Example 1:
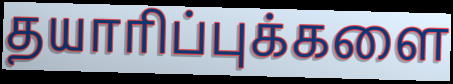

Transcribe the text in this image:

தயாரிப்புக்களை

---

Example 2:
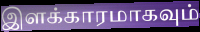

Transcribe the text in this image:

இளக்காரமாகவும்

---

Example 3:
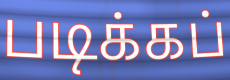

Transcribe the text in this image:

படிக்கப்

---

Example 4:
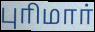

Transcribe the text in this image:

புரிமார்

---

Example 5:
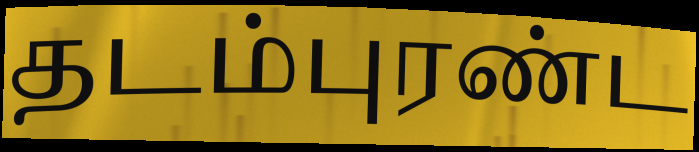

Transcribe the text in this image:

தடம்புரண்ட